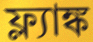
ফ্ল্যাঙ্ক